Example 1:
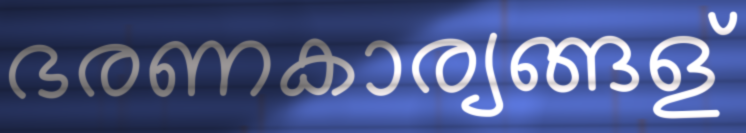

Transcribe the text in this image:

ഭരണകാര്യങ്ങള്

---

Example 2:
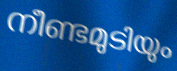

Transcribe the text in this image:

നീണ്ടമുടിയും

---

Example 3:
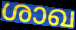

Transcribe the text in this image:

ശാഖ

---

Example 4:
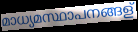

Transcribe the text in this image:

മാധ്യമസ്ഥാപനങ്ങള്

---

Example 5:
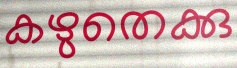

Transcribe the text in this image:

കഴുതെക്കു